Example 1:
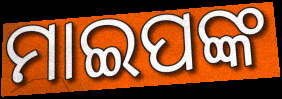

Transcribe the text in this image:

ମାଇପଙ୍କ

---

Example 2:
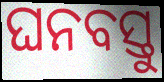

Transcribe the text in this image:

ଘନବସ୍ତୁ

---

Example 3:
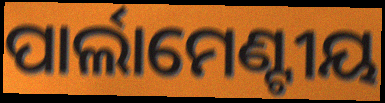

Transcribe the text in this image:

ପାର୍ଲାମେଣ୍ଟୀୟ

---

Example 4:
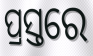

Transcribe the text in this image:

ପ୍ରସ୍ତରେ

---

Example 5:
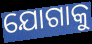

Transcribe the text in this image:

ଯୋଗାକୁ